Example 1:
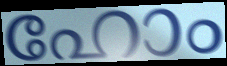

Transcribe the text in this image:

ഹോം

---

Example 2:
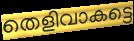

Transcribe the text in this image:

തെളിവാകട്ടെ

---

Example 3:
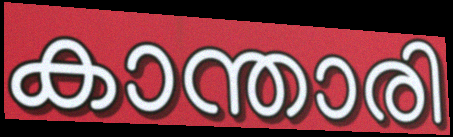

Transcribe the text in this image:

കാന്താരി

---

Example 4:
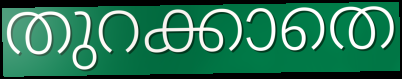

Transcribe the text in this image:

തുറക്കാതെ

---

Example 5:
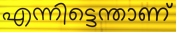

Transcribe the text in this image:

എന്നിട്ടെന്താണ്